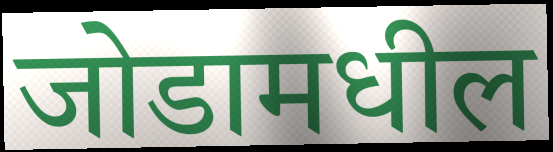
जोडामधील